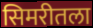
सिमरीतला